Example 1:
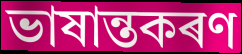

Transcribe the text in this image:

ভাষান্তকৰণ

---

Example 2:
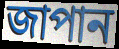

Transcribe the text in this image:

জাপান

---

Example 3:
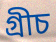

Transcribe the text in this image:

গ্ৰীচ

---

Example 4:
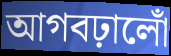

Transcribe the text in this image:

আগবঢ়ালোঁ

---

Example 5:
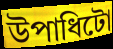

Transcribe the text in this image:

উপাধিটো